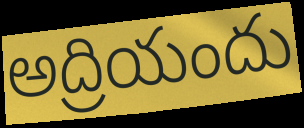
అద్రియందు